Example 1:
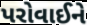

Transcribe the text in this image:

પરોવાઈને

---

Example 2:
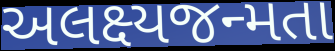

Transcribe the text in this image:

અલક્ષ્યજન્મતા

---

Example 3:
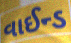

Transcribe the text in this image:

વાઈન્ડ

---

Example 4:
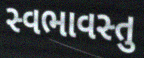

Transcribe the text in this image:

સ્વભાવસ્તુ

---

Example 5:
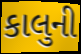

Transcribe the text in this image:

કાલુની